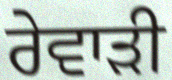
ਰੇਵਾਡ਼ੀ